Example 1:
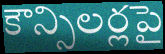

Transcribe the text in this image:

కౌన్సిలర్లపై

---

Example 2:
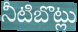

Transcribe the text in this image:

నీటిబొట్లు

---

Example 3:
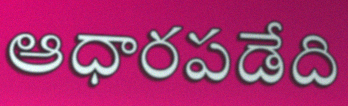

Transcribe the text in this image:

ఆధారపడేది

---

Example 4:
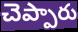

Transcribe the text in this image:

చెప్పారు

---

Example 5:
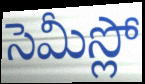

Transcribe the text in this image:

సెమీస్లో